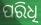
ପରିଧି